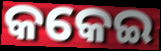
କକେଇ